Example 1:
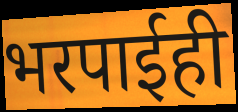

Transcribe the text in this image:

भरपाईही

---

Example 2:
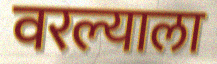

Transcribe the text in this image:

वरल्याला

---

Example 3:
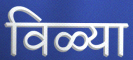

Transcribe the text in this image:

विळ्या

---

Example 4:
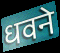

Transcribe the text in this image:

धवने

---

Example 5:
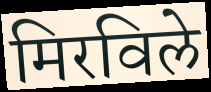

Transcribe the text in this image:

मिरविले